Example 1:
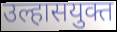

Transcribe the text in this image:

उल्हासयुक्त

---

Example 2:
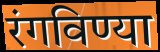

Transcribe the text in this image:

रंगविण्या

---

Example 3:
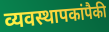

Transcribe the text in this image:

व्यवस्थापकांपैकी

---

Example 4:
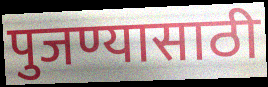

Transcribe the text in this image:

पुजण्यासाठी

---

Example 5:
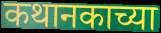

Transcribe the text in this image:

कथानकाच्या